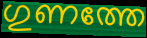
ഗുണത്തേ